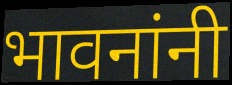
भावनांनी